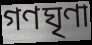
গণঘৃণা